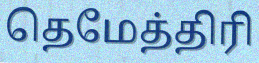
தெமேத்திரி